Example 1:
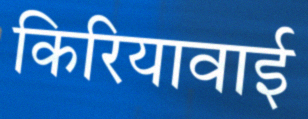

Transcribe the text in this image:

किरियावाई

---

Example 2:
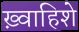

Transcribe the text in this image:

ख़्वाहिशे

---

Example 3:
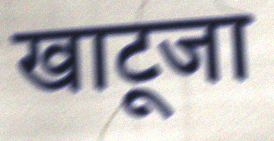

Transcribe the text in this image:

खाटूजा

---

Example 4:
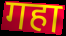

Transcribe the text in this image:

गहा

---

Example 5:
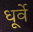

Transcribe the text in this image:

धूर्वे